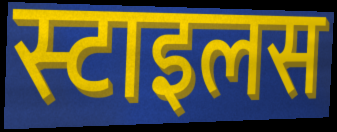
स्टाइलस